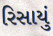
રિસાયું